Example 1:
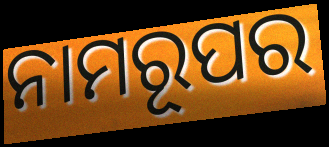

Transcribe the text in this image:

ନାମରୂପର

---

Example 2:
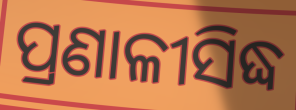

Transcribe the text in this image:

ପ୍ରଣାଳୀସିଦ୍ଧ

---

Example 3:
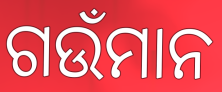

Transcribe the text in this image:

ଗଉଁମାନ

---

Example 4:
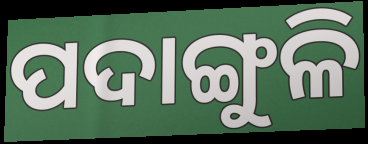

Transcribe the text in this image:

ପଦାଙ୍ଗୁଳି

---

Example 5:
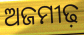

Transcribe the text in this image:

ଅଜମୀଢ଼